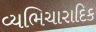
વ્યભિચારાદિક